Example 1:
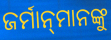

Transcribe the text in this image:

ଜର୍ମାନ୍‌ମାନଙ୍କୁ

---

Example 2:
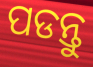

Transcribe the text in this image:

ପଡନ୍ତୁ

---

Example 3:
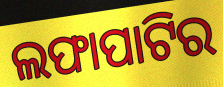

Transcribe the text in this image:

ଲଫାପାଟିର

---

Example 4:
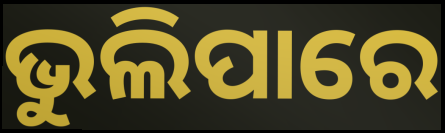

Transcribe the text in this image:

ଭୁଲିପାରେ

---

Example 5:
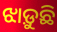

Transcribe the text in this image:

ଝାଡ଼ୁଛି